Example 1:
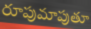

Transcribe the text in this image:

రూపుమాపుతూ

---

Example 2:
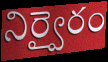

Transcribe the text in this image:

నిర్వైరం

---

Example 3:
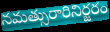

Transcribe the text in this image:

నమత్సురారినిర్జరం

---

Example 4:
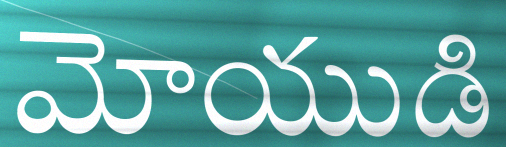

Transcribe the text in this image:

మోయుడి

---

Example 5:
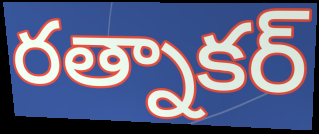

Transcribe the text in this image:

రత్నాకర్